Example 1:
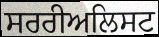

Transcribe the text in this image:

ਸਰਰੀਅਲਿਸਟ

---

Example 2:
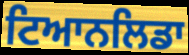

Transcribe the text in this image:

ਟਿਆਨਲਿਡਾ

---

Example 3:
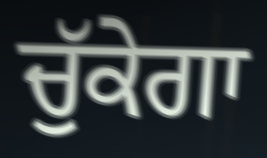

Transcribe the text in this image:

ਚੁੱਕੇਗਾ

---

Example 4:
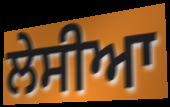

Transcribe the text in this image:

ਲੇਸੀਆ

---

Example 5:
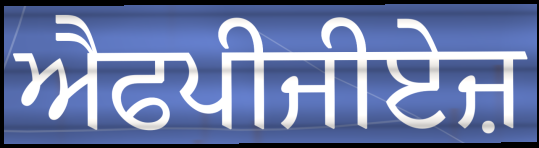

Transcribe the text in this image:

ਐਫਪੀਜੀਏਜ਼